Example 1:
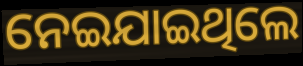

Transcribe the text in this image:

ନେଇଯାଇଥିଲେ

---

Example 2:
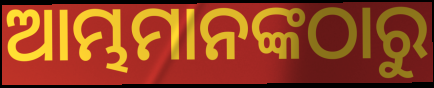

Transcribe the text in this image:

ଆମ୍ଭମାନଙ୍କଠାରୁ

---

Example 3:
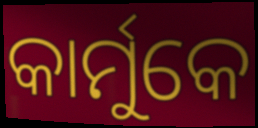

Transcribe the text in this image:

କାର୍ମୁକେ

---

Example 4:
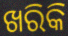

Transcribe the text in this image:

ଖରିକି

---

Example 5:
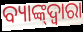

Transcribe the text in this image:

ବ୍ୟାଙ୍କ୍‌ଦ୍ୱାରା